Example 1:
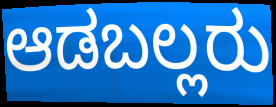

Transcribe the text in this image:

ಆಡಬಲ್ಲರು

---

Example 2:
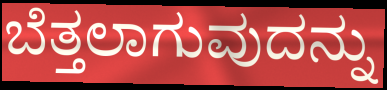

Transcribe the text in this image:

ಬೆತ್ತಲಾಗುವುದನ್ನು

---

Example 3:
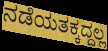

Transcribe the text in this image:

ನಡೆಯತಕ್ಕದ್ದಲ್ಲ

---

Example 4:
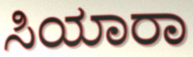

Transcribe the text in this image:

ಸಿಯಾರಾ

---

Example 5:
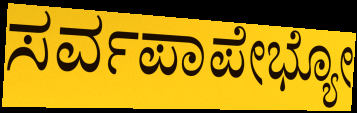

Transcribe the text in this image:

ಸರ್ವಪಾಪೇಭ್ಯೋ